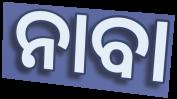
ନାବା